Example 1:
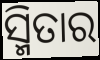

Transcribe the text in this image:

ସ୍ମିତାର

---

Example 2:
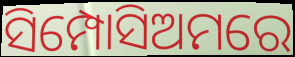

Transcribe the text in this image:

ସିମ୍ପୋସିଅମରେ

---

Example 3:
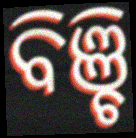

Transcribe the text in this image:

ବିଞ୍ଚି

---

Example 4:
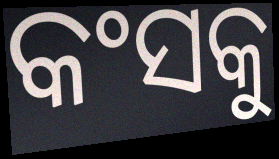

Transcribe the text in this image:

କଂସକୁ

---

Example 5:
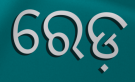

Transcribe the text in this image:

ରେଡ଼